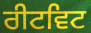
ਰੀਟਵਿਟ